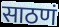
साठणं